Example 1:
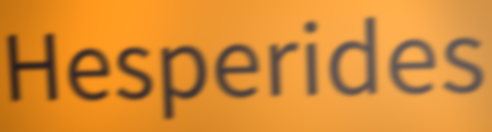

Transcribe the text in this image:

Hesperides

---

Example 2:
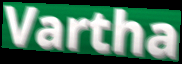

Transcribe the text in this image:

Vartha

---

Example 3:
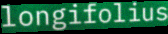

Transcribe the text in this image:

longifolius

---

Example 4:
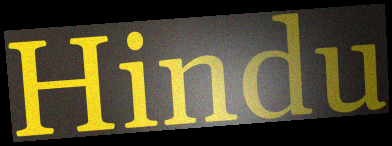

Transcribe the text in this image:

Hindu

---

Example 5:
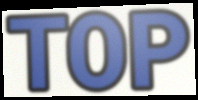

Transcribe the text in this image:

TOP